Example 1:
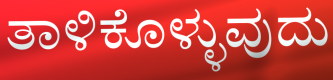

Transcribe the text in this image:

ತಾಳಿಕೊಳ್ಳುವುದು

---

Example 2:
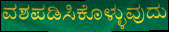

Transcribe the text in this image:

ವಶಪಡಿಸಿಕೊಳ್ಳುವುದು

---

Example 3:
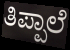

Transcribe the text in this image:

ತಿಪ್ಪಾಲೆ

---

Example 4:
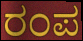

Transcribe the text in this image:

ರಂಪ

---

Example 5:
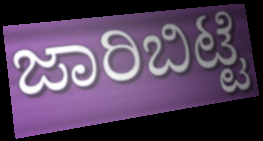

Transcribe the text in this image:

ಜಾರಿಬಿಟ್ಟೆ